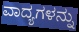
ವಾದ್ಯಗಳನ್ನು